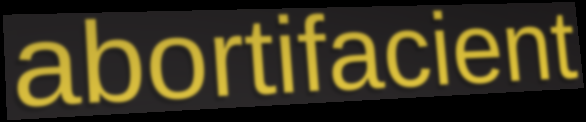
abortifacient